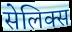
सेलिक्स